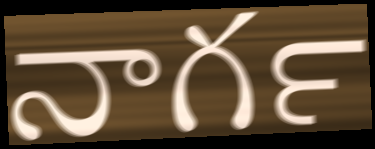
నాగర్‍